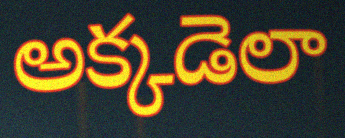
అక్కడెలా